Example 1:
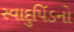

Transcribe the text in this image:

સ્વાદુપિંડનો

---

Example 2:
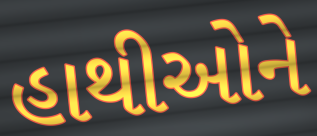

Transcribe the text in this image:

હાથીઓને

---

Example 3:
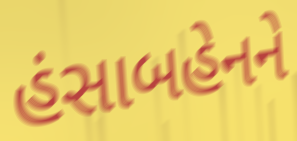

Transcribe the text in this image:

હંસાબહેનને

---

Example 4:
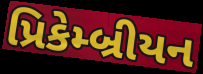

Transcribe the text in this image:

પ્રિકેમ્બ્રીયન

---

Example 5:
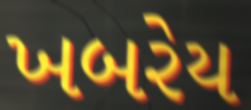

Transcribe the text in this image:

ખબરેય